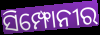
ସିମ୍ଫୋନୀର